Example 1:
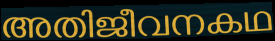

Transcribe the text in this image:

അതിജീവനകഥ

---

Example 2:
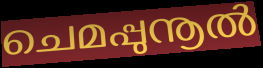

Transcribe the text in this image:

ചെമപ്പുനൂൽ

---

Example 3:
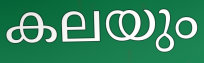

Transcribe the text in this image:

കലയും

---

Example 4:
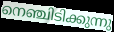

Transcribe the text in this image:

നെഞ്ചിടിക്കുന്നു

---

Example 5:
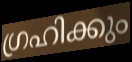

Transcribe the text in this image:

ഗ്രഹിക്കും